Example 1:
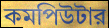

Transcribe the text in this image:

কমপিউটার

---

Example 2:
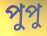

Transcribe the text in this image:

পুপু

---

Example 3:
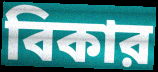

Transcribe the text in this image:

বিকার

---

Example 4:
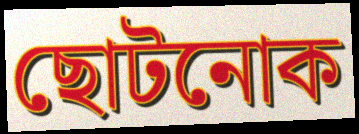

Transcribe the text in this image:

ছোটনোক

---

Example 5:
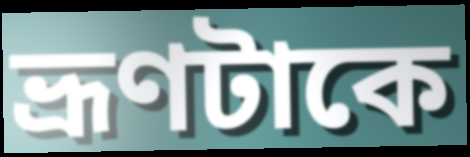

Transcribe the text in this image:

ভ্রূণটাকে